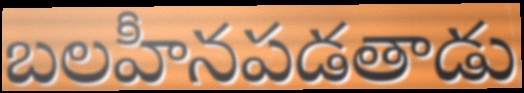
బలహీనపడతాడు